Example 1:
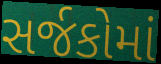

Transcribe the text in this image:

સર્જકોમાં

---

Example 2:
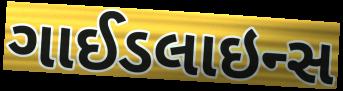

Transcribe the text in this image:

ગાઈડલાઇન્સ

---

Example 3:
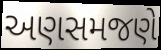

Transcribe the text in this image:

અણસમજણે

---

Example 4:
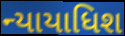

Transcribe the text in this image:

ન્યાયાધિશ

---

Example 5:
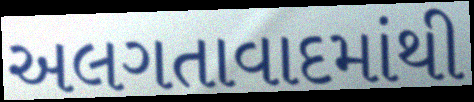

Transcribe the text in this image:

અલગતાવાદમાંથી